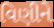
વિણીને